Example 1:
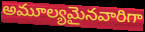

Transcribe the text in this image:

అమూల్యమైనవారిగా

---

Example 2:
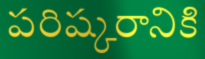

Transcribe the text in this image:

పరిష్కరానికి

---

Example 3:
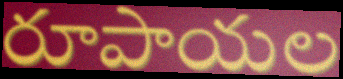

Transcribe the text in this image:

రూపాయల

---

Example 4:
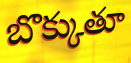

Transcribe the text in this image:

బొక్కుతూ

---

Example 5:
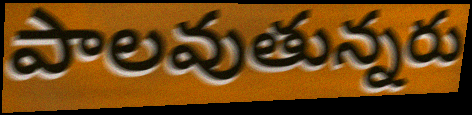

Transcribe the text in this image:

పాలవుతున్నరు